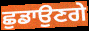
ਛੁਡਾਉਣਗੇ